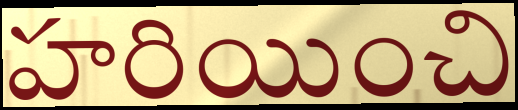
హరియించి